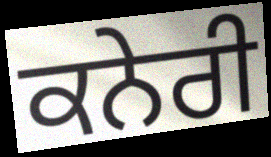
ਕਨੇਰੀ